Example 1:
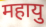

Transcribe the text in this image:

महायु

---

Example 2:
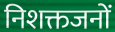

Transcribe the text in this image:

निशक्तजनों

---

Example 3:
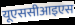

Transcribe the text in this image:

यूएससीआइएस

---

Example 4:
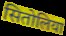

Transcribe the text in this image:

सितोलिया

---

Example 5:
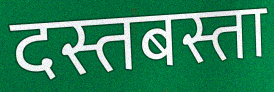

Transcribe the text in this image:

दस्तबस्ता